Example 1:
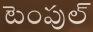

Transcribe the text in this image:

టెంపుల్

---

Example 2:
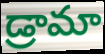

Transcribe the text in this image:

డ్రామా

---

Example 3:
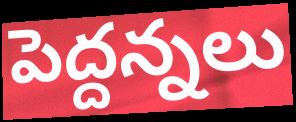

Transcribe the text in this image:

పెద్దన్నలు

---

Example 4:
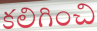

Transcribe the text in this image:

కలిగించి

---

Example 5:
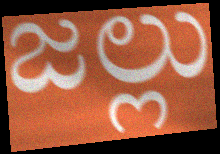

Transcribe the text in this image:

జల్లు